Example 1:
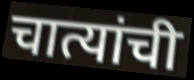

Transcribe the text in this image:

चात्यांची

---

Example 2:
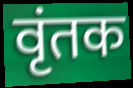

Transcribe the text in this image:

वृंतक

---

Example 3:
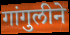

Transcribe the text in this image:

गांगुलीने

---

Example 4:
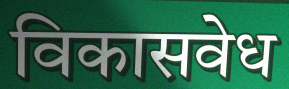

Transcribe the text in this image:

विकासवेध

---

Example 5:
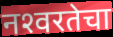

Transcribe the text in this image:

नश्वरतेचा